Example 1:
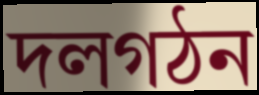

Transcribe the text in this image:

দলগঠন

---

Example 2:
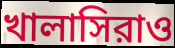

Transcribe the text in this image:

খালাসিরাও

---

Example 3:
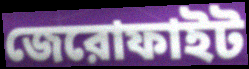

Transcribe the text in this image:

জেরোফাইট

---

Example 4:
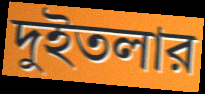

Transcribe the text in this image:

দুইতলার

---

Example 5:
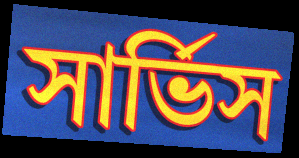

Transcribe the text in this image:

সার্ভিস